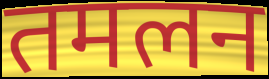
तमलन